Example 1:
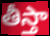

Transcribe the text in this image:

తీస్తా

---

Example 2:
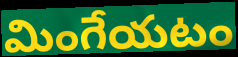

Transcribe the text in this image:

మింగేయటం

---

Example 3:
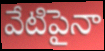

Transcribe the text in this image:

వేటిపైనా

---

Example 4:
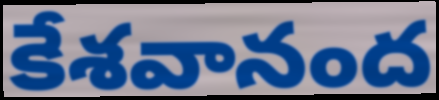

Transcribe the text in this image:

కేశవానంద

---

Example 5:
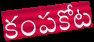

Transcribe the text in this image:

కంపకోట